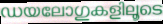
ഡയലോഗുകളിലൂടെ